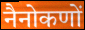
नैनोकणों